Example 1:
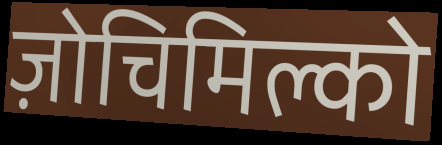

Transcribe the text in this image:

ज़ोचिमिल्को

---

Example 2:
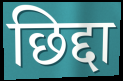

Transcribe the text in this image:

छिद्दा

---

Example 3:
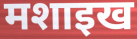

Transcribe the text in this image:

मशाइख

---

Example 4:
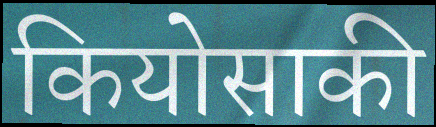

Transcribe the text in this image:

कियोसाकी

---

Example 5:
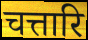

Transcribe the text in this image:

चत्तारि